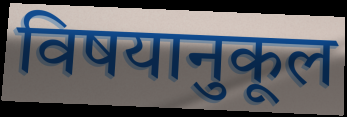
विषयानुकूल